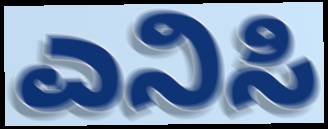
ಎನಿಸಿ